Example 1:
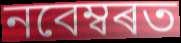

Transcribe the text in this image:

নবেম্বৰত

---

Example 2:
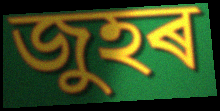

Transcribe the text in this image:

জুহৰ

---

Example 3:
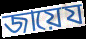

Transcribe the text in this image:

জায়েয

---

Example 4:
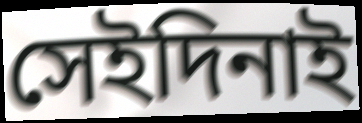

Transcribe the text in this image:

সেইদিনাই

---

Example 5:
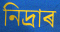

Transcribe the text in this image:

নিদ্ৰাৰ